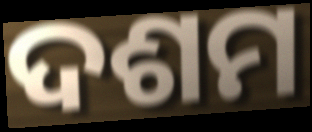
ଦଶମ